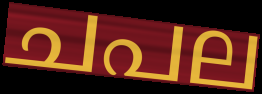
ചപല